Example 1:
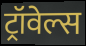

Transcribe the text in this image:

ट्रॉवेल्स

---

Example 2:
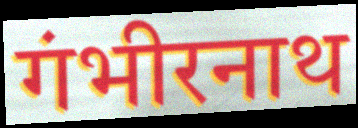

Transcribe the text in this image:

गंभीरनाथ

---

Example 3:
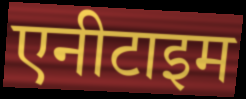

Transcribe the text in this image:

एनीटाइम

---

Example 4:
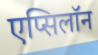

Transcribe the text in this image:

एप्सिलॉन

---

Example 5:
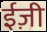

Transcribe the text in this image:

ईज़ी